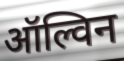
ऑल्विन